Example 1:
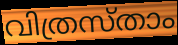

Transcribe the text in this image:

വിത്രസ്താം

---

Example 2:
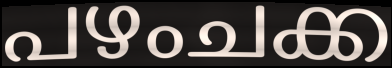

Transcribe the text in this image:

പഴംചക്ക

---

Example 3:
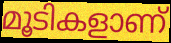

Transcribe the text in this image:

മൂടികളാണ്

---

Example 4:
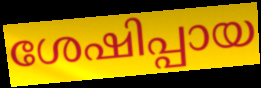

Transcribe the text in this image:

ശേഷിപ്പായ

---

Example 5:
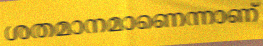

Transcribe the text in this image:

ശതമാനമാണെന്നാണ്